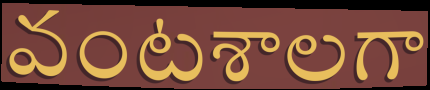
వంటశాలగా